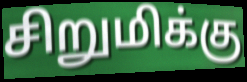
சிறுமிக்கு